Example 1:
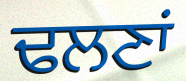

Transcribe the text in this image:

ਢਲਣਾਂ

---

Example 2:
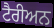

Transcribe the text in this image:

ਟੈਰੀਅਨ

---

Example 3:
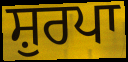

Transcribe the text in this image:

ਸ਼ੁਰਪਾ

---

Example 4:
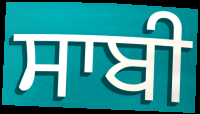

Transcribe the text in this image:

ਸਾਬੀ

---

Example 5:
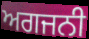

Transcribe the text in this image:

ਅਗਜਨੀ